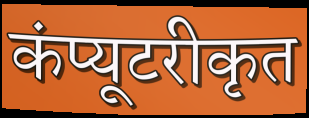
कंप्यूटरीकृत